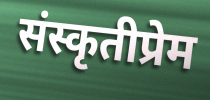
संस्कृतीप्रेम